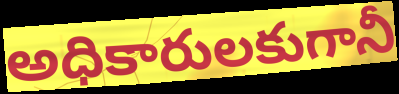
అధికారులకుగానీ